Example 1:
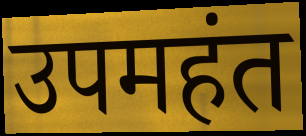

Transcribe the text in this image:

उपमहंत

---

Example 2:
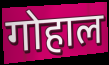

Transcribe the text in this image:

गोहाल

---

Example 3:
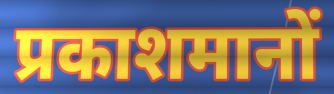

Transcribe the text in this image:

प्रकाशमानों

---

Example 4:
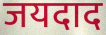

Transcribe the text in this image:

जयदाद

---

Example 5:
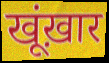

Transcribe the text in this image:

खूंख़ार